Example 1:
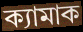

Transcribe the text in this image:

ক্যামাক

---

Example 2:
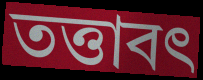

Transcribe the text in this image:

তত্তাবৎ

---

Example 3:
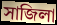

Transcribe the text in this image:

সাজিলা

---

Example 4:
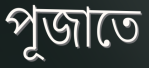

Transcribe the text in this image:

পূজাতে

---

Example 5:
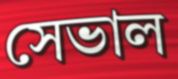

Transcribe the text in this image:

সেভাল